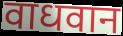
वाधवान